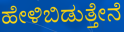
ಹೇಳಿಬಿಡುತ್ತೇನೆ